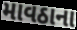
માવઠાના